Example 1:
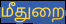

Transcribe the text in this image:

மீதுறை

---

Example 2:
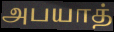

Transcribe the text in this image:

அபயாத்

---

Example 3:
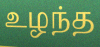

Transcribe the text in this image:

உழந்த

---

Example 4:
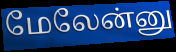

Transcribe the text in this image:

மேலேன்னு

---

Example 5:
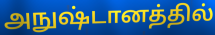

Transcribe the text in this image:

அநுஷ்டானத்தில்